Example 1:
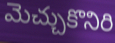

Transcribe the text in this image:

మెచ్చుకొనిరి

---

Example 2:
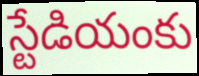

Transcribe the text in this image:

స్టేడియంకు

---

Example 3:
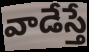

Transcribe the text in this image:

వాడేస్తే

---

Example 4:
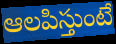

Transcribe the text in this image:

ఆలపిస్తుంటే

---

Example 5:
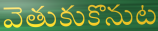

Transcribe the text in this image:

వెతుకుకొనుట